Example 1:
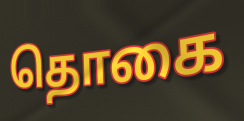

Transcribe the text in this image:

தொகை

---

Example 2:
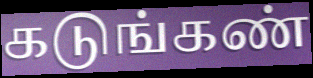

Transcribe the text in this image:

கடுங்கண்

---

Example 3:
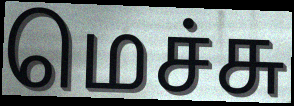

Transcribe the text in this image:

மெச்சு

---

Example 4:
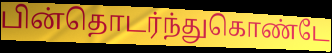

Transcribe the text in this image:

பின்தொடர்ந்துகொண்டே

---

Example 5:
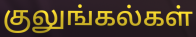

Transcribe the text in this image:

குலுங்கல்கள்